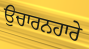
ਉਚਾਰਨਹਾਰੇ